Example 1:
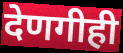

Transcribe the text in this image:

देणगीही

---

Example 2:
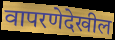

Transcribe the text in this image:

वापरणेदेखील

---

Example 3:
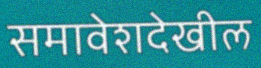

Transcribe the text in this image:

समावेशदेखील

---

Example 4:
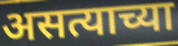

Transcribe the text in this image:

असत्याच्या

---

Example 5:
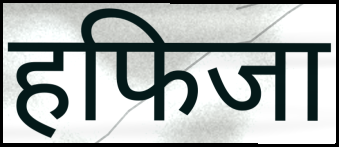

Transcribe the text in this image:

हफिजा